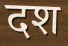
दश